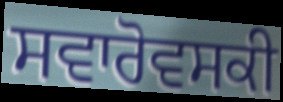
ਸਵਾਰੋਵਸਕੀ